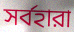
সর্বহারা